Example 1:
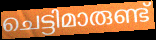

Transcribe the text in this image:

ചെട്ടിമാരുണ്ട്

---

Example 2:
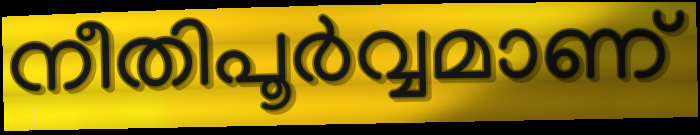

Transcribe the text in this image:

നീതിപൂർവ്വമാണ്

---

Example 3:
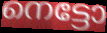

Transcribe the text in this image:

നെട്ടോ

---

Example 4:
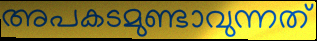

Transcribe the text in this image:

അപകടമുണ്ടാവുന്നത്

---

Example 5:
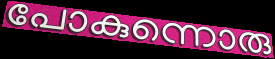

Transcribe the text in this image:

പോകുന്നൊരു